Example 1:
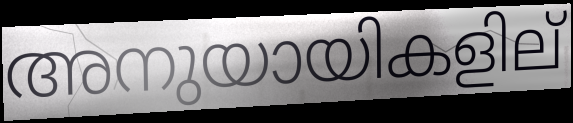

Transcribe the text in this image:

അനുയായികളില്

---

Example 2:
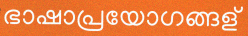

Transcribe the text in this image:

ഭാഷാപ്രയോഗങ്ങള്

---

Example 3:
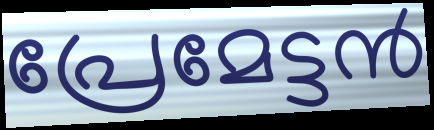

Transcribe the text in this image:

പ്രേമേട്ടൻ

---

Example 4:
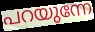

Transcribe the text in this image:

പറയുന്നേ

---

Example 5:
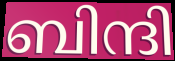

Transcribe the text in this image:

ബിന്ദി